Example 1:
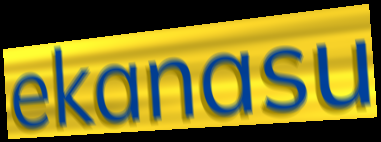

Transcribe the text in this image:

ekanasu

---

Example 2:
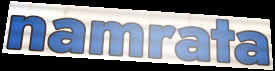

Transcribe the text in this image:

namrata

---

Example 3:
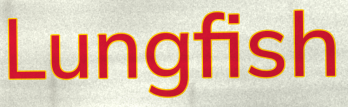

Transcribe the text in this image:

Lungfish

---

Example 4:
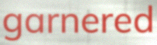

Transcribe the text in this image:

garnered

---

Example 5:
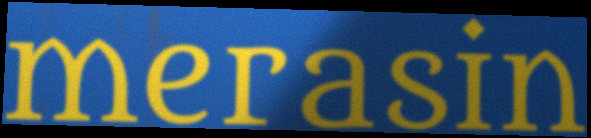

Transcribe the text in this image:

merasin